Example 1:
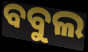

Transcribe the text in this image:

ବବୁଲ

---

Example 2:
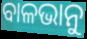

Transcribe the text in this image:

ବାଳଭାନୁ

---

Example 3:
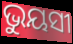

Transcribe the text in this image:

ଭୁୟସୀ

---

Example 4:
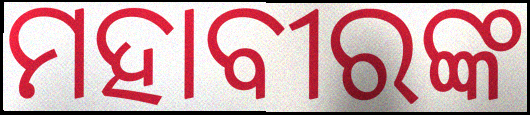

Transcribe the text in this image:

ମହାବୀରଙ୍କ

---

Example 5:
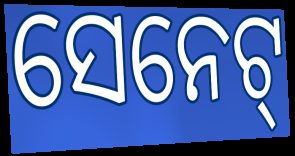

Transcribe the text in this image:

ସେନେଟ୍